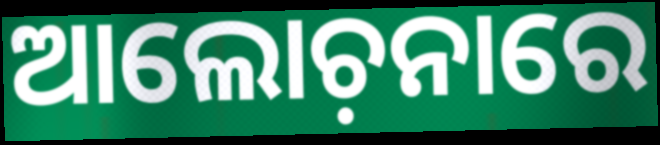
ଆଲୋଚ଼ନାରେ